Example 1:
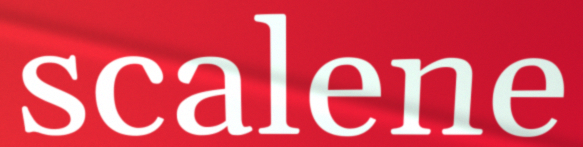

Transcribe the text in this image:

scalene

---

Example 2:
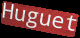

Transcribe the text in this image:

Huguet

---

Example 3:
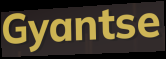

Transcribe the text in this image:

Gyantse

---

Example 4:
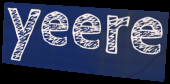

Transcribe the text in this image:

yeere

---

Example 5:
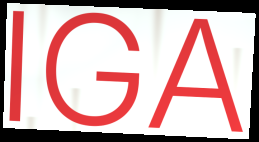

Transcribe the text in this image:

IGA